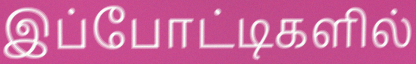
இப்போட்டிகளில்